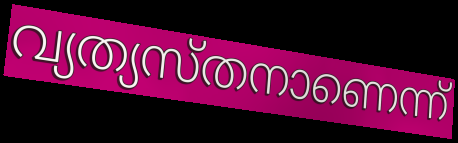
വ്യത്യസ്തനാണെന്ന്